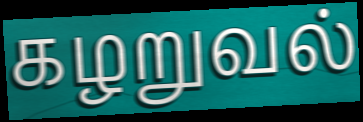
கழறுவல்